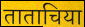
ताताचिया